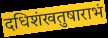
दधिशंखतुषाराभं